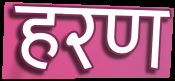
हरण